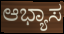
ಆಭ್ಯಾಸ